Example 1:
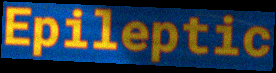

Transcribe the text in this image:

Epileptic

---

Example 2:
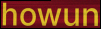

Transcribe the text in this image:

howun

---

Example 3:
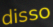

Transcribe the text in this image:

disso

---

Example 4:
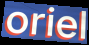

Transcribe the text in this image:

oriel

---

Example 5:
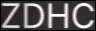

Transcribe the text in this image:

ZDHC